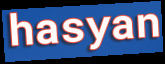
hasyan